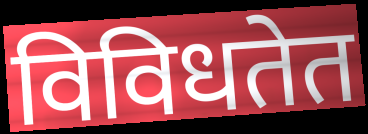
विविधतेत